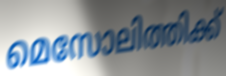
മെസോലിത്തിക്ക്